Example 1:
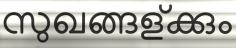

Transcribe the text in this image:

സുഖങ്ങള്ക്കും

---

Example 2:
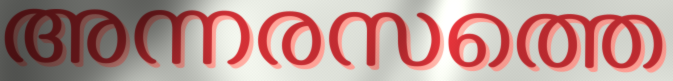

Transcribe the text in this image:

അന്നരസത്തെ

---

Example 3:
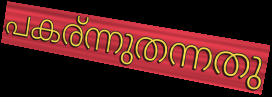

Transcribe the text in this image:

പകര്ന്നുതന്നതു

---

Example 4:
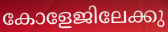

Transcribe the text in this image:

കോളേജിലേക്കു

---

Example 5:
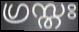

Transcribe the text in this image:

ഗ്രസ്തഃ